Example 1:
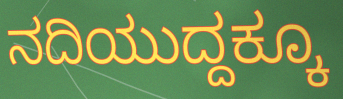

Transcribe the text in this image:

ನದಿಯುದ್ದಕ್ಕೂ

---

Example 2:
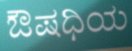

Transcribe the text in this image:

ಔಷಧಿಯ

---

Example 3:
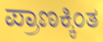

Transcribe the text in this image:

ಪ್ರಾಣಕ್ಕಿಂತ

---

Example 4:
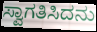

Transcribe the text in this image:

ಸ್ವಾಗತಿಸಿದನು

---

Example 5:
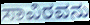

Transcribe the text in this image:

ಸಾವಿರವನು